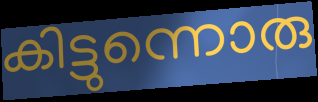
കിട്ടുന്നൊരു